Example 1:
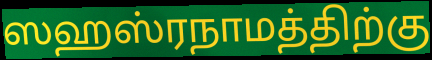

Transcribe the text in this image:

ஸஹஸ்ரநாமத்திற்கு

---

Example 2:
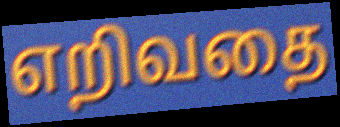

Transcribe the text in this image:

எறிவதை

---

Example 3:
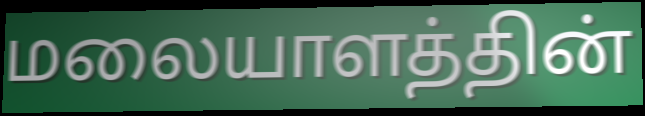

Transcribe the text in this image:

மலையாளத்தின்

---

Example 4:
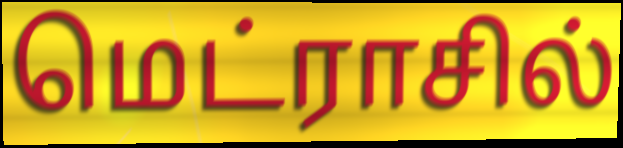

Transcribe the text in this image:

மெட்ராசில்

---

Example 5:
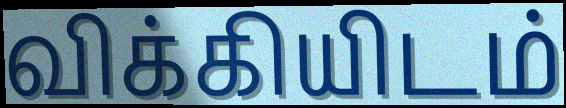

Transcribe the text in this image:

விக்கியிடம்